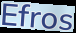
Efros